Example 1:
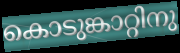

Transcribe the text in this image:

കൊടുങ്കാറ്റിനു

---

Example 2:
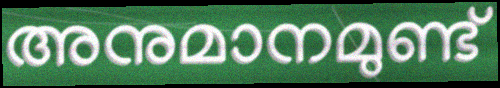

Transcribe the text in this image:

അനുമാനമുണ്ട്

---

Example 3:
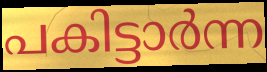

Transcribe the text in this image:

പകിട്ടാർന്ന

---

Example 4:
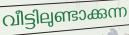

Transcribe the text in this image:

വീട്ടിലുണ്ടാക്കുന്ന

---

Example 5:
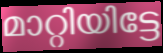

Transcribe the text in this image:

മാറ്റിയിട്ടേ